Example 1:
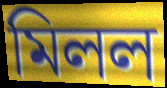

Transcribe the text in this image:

মিলল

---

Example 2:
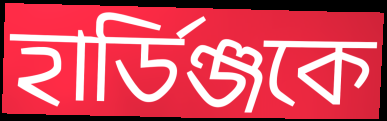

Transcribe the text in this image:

হার্ডিঞ্জকে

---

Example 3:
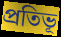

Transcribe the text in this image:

প্রতিভূ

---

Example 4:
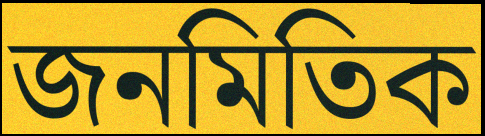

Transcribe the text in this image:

জনমিতিক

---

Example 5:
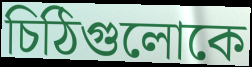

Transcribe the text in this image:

চিঠিগুলোকে